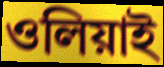
ওলিয়াই